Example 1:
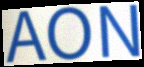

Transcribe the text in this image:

AON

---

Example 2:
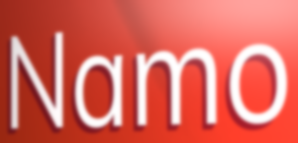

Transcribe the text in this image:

Namo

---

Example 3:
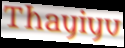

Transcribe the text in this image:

Thayiyu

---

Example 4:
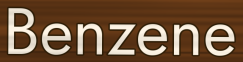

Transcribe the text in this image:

Benzene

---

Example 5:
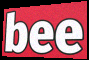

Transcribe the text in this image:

bee